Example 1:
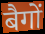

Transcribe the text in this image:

बैगों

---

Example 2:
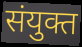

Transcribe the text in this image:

संयुक्त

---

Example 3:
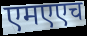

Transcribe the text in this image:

एमएएच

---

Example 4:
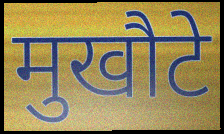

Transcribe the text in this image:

मुखौटे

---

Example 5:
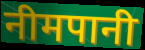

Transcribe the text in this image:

नीमपानी